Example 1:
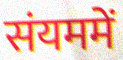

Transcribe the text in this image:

संयममें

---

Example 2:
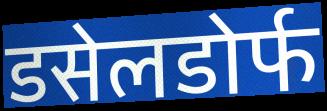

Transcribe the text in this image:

डसेलडोर्फ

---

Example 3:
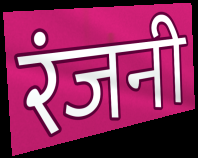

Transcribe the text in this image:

रंजनी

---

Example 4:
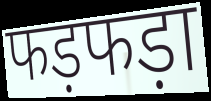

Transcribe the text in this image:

फड़फड़ा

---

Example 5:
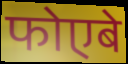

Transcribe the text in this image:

फोएबे